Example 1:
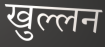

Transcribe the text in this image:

खुल्लन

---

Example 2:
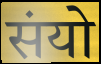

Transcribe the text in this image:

संयो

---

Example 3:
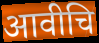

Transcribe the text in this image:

आवीचि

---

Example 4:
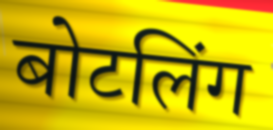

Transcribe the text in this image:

बोटलिंग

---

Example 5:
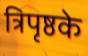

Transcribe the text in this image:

त्रिपृष्ठके